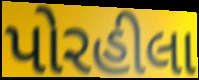
પોરહીલા